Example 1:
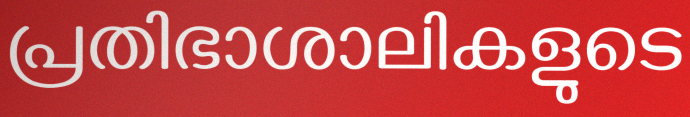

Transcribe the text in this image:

പ്രതിഭാശാലികളുടെ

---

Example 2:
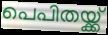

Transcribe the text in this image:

പെപിതയ്ക്ക്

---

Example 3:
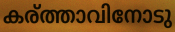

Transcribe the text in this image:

കര്ത്താവിനോടു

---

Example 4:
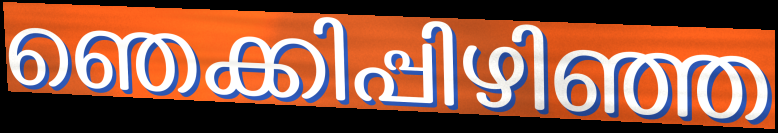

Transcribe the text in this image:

ഞെക്കിപ്പിഴിഞ്ഞ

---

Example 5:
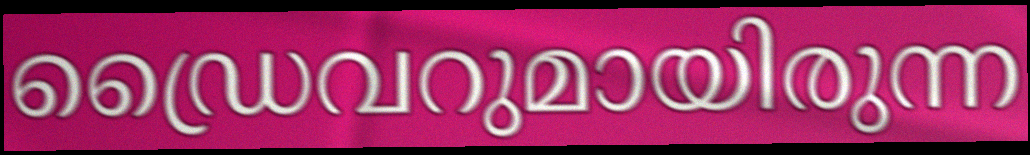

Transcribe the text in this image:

ഡ്രൈവറുമായിരുന്ന